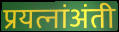
प्रयत्नांअंती